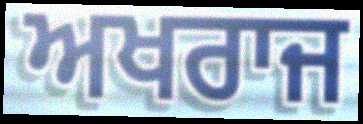
ਅਖਰਾਜ